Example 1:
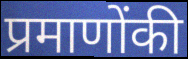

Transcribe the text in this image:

प्रमाणोंकी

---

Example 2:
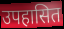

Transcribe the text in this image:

उपहासित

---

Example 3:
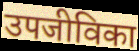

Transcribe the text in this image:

उपजीविका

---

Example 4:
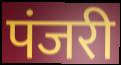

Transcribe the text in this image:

पंजरी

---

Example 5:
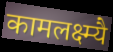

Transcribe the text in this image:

कामलक्ष्म्यै